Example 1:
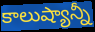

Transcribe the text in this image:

కాలుష్యాన్నీ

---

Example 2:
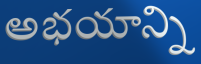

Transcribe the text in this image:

అభయాన్ని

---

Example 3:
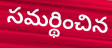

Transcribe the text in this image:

సమర్థించిన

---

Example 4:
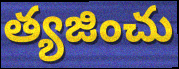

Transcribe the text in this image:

త్యజించు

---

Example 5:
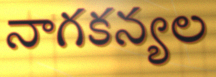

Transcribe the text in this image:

నాగకన్యల